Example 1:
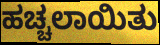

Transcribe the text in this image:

ಹಚ್ಚಲಾಯಿತು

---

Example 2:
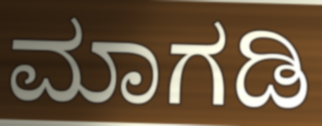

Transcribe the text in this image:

ಮಾಗಡಿ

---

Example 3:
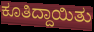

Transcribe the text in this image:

ಕೂತಿದ್ದಾಯಿತು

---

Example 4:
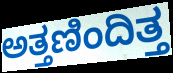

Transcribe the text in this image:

ಅತ್ತಣಿಂದಿತ್ತ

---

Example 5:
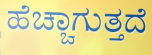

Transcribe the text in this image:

ಹೆಚ್ಚಾಗುತ್ತದೆ